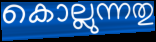
കൊല്ലുന്നതു